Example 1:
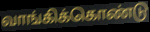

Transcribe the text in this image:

வாங்கிக்கொண்டு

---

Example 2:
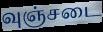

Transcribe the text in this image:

வுஞ்சடை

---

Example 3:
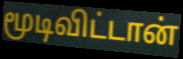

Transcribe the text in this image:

மூடிவிட்டான்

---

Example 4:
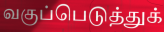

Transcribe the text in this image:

வகுப்பெடுத்துக்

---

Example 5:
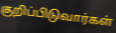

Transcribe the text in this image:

குறிப்பிடுவார்கள்